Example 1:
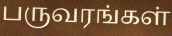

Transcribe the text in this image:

பருவரங்கள்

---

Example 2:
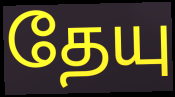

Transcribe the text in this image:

தேயு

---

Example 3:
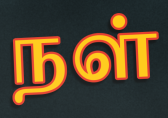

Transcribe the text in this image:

நள்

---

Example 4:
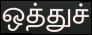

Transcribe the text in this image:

ஒத்துச்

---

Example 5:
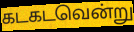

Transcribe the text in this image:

கடகடவென்று